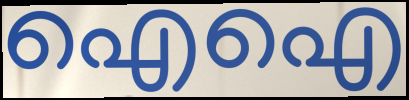
ഐഐ